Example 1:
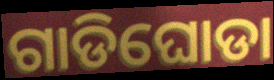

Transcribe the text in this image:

ଗାଡିଘୋଡା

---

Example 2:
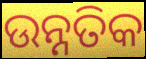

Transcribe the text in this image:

ଉନ୍ନତିକ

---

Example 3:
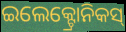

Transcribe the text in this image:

ଇଲେକ୍ଟ୍ରୋନିକସ୍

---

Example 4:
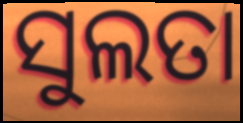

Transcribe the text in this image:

ସୁଲତା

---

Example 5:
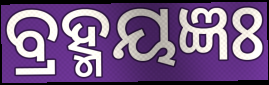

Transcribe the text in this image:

ବ୍ରହ୍ମୟଜ୍ଞଃ